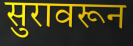
सुरावरून